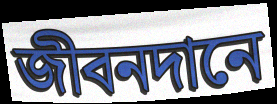
জীবনদানে